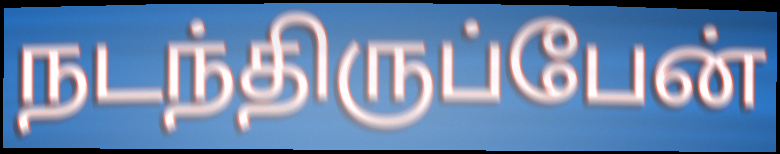
நடந்திருப்பேன்